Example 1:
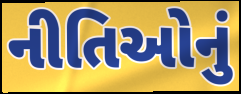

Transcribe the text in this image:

નીતિઓનું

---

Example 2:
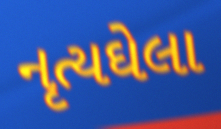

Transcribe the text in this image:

નૃત્યઘેલા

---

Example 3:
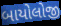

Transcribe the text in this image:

બાયોલોજી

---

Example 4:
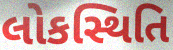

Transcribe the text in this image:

લોકસ્થિતિ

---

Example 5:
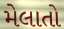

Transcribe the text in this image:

મેલાતો